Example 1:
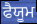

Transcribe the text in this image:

ਫੈਯੂਮ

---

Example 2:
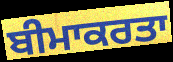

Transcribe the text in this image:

ਬੀਮਾਕਰਤਾ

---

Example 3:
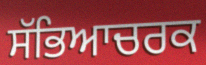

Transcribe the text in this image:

ਸੱਭਿਆਚਰਕ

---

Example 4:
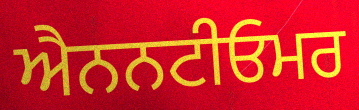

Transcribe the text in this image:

ਐਨਨਟੀਓਮਰ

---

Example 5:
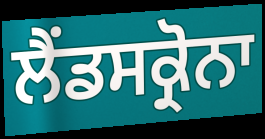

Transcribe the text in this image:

ਲੈਂਡਸਕ੍ਰੋਨਾ